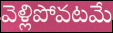
వెళ్లిపోవటమే